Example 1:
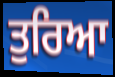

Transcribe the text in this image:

ਤੁਰਿਆ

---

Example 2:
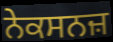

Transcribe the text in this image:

ਨੇਕਸਨਜ਼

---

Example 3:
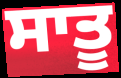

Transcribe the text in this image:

ਸਾਤੂ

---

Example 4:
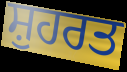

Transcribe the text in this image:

ਸ਼ੁਹਰਤ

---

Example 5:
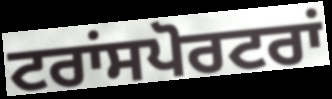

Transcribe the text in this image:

ਟਰਾਂਸਪੋਰਟਰਾਂ